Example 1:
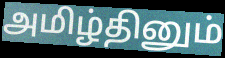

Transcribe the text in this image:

அமிழ்தினும்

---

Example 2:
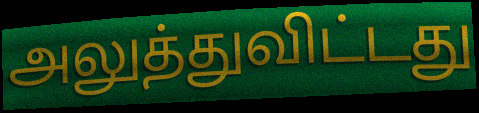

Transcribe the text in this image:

அலுத்துவிட்டது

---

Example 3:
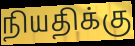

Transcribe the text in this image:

நியதிக்கு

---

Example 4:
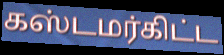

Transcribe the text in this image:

கஸ்டமர்கிட்ட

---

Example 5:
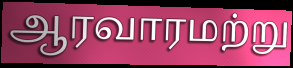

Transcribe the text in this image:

ஆரவாரமற்று